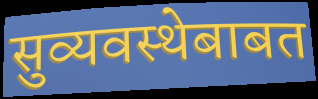
सुव्यवस्थेबाबत